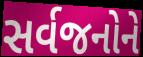
સર્વજનોને